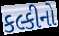
કલ્કીનો